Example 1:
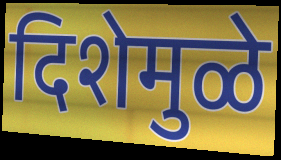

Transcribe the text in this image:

दिशेमुळे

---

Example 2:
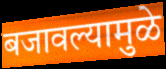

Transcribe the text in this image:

बजावल्यामुळे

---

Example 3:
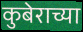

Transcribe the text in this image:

कुबेराच्या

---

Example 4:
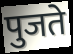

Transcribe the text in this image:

पुजते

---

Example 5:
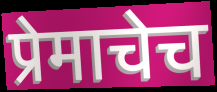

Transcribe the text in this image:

प्रेमाचेच